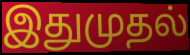
இதுமுதல்